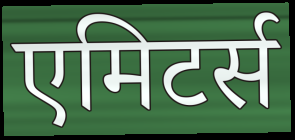
एमिटर्स